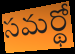
సమర్థో